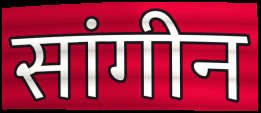
सांगीन